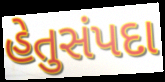
હેતુસંપદા